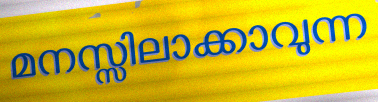
മനസ്സിലാക്കാവുന്ന